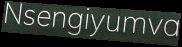
Nsengiyumva